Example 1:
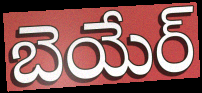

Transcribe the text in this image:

బెయేర్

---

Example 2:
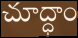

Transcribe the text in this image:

చూద్ధాం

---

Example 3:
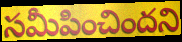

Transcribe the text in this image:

సమీపించిందని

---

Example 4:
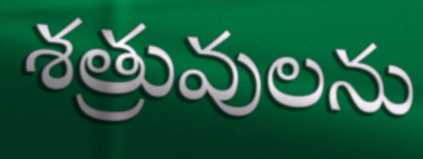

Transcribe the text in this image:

శత్రువులను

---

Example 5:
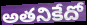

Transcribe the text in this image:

అతనికేదో